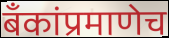
बॅंकांप्रमाणेच